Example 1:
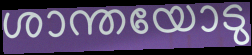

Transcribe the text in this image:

ശാന്തയോടു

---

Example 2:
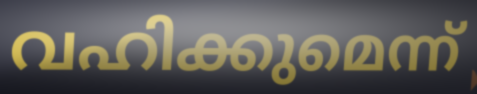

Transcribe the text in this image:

വഹിക്കുമെന്ന്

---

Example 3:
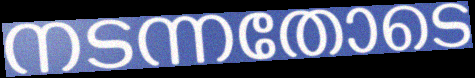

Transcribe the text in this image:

നടന്നതോടെ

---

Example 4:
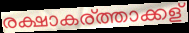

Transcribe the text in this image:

രക്ഷാകര്ത്താക്കള്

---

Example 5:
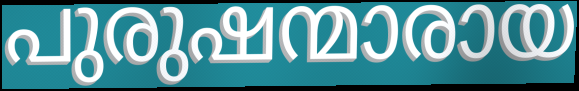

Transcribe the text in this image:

പുരുഷന്മാരായ